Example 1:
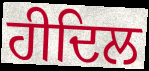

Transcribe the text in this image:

ਹੀਦਿਲ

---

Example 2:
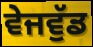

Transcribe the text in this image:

ਵੇਜਵੁੱਡ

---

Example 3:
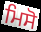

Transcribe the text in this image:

ਮਿਸੋ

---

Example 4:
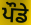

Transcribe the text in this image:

ਪੌਡੇ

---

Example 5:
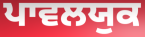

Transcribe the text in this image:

ਪਾਵਲਯੁਕ